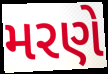
મરણે